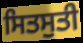
ਸਿਤਸੁਤੀ